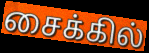
சைக்கில்